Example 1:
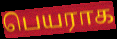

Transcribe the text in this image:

பெயராக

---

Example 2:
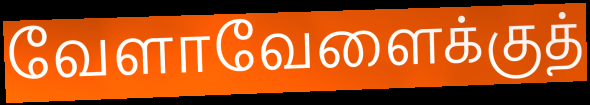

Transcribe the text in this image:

வேளாவேளைக்குத்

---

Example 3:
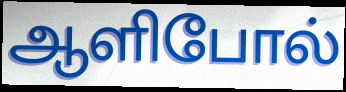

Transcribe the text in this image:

ஆளிபோல்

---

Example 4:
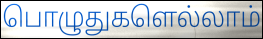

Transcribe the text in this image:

பொழுதுகளெல்லாம்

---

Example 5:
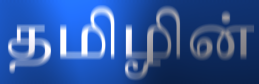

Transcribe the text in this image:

தமிழின்